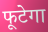
फूटेगा